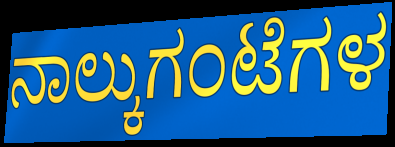
ನಾಲ್ಕುಗಂಟೆಗಳ